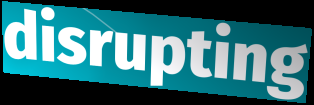
disrupting